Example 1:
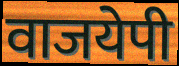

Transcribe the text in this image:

वाजयेपी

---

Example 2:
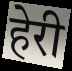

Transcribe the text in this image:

हेरी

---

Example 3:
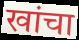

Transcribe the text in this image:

खांचा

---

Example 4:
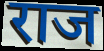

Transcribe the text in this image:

राज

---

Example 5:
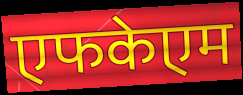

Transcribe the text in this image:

एफकेएम